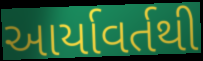
આર્યાવર્તથી